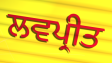
ਲਵਪ੍ਰੀਤ